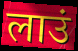
लाउं